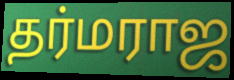
தர்மராஜ